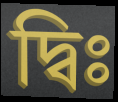
দ্বিঃ